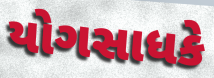
યોગસાધકે